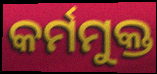
କର୍ମମୁକ୍ତ